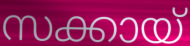
സക്കായ്